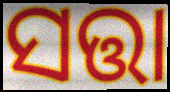
ସତ୍ତା